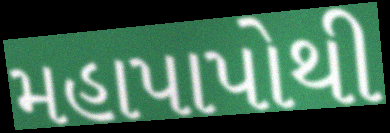
મહાપાપોથી